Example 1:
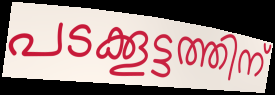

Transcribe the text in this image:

പടക്കൂട്ടത്തിന്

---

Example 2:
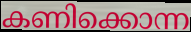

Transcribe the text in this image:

കണിക്കൊന്ന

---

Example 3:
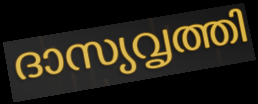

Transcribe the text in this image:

ദാസ്യവൃത്തി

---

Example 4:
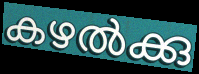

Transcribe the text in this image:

കഴൽക്കു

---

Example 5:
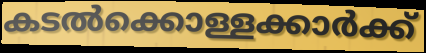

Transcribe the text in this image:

കടൽക്കൊള്ളക്കാർക്ക്